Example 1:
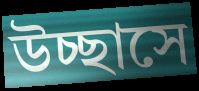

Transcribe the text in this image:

উচ্ছাসে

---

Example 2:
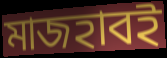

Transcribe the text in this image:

মাজহাবই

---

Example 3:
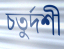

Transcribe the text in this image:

চতুর্দশী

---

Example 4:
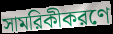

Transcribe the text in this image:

সামরিকীকরণে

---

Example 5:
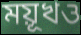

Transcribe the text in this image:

ময়ূখও